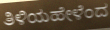
ತಿಳಿಯಹೇಳೆಂದ